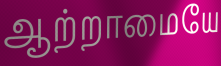
ஆற்றாமையே